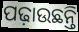
ପଢ଼ାଉଛନ୍ତି